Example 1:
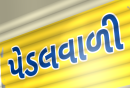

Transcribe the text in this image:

પેડલવાળી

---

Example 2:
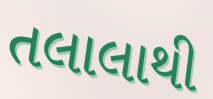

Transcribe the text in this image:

તલાલાથી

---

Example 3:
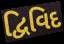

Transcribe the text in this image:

દ્વિવિદ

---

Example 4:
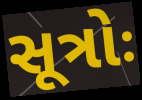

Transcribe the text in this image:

સૂત્રોઃ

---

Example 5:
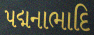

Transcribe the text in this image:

પદ્મનાભાદિ